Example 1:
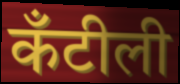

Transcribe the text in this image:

कँटीली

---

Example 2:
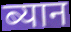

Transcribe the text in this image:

ब्यान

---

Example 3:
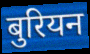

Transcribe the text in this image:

बुरियन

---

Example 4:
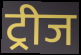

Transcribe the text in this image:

ट्रीज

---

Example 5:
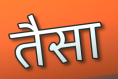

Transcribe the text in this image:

तैसा